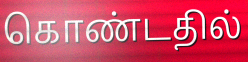
கொண்டதில்